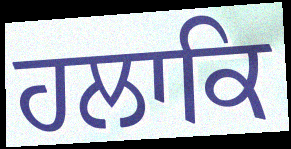
ਹਲਾਕਿ